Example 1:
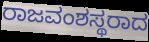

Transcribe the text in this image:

ರಾಜವಂಶಸ್ಥರಾದ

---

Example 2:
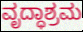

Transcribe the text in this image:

ವೃದ್ಧಾಶ್ರಮ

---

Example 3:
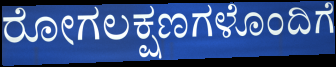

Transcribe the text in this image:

ರೋಗಲಕ್ಷಣಗಳೊಂದಿಗೆ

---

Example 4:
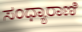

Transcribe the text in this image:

ಸಂಧ್ಯಾರಾಣಿ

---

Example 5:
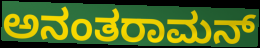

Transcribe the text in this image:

ಅನಂತರಾಮನ್